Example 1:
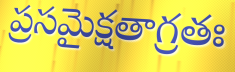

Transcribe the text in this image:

ప్రసమైక్షతాగ్రతః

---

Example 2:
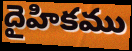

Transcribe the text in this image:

దైహికము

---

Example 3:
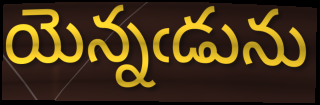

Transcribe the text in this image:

యెన్నఁడును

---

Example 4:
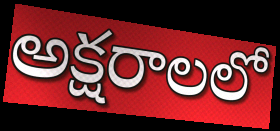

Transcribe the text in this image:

అక్షరాలలో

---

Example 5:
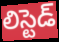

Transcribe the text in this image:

లిస్టెడ్